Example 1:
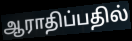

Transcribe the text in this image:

ஆராதிப்பதில்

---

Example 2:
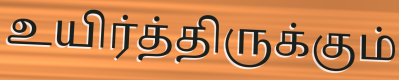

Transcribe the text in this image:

உயிர்த்திருக்கும்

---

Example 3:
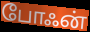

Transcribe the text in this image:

போஃன்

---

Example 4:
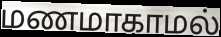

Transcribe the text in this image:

மணமாகாமல்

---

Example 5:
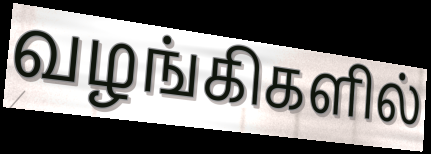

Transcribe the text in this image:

வழங்கிகளில்